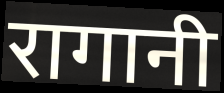
रागानी